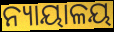
ନ୍ୟାୟାଳୟ